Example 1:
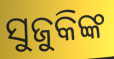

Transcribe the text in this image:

ସୁଜୁକିଙ୍କ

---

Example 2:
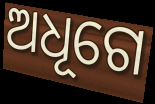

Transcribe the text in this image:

ଅଧୂଗେ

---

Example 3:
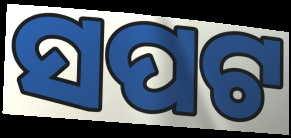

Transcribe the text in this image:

ସପଟ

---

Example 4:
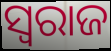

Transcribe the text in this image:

ସ୍ବରାଜ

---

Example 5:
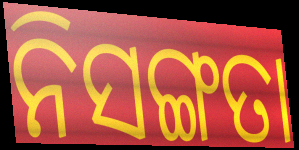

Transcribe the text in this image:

ନିସଙ୍ଗତା